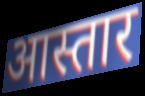
आस्तार